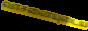
வாசனையுடைய